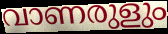
വാണരുളും